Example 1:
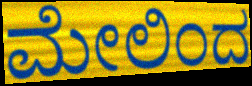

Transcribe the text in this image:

ಮೇಲಿಂದ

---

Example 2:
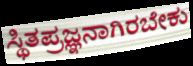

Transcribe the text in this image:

ಸ್ಥಿತಪ್ರಜ್ಞನಾಗಿರಬೇಕು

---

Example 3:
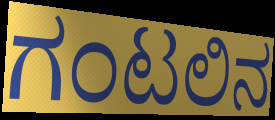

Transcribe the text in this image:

ಗಂಟಲಿನ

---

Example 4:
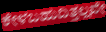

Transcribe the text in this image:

ಕೇಳಬಹುದಿತ್ತಲ್ಲವೇ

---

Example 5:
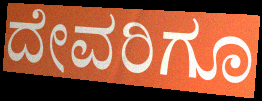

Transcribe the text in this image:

ದೇವರಿಗೂ